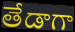
తేడాగా